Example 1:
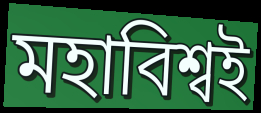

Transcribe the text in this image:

মহাবিশ্বই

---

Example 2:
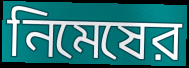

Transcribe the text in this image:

নিমেষের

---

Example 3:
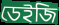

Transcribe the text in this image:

ডেইজি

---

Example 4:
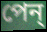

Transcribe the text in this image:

পেন্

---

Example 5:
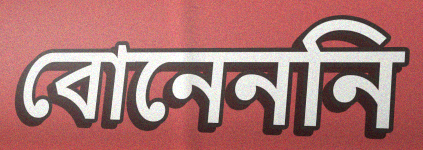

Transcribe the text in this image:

বোনেননি